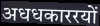
अधधकाररयों